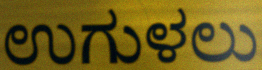
ಉಗುಳಲು